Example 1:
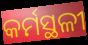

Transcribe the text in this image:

କର୍ମସ୍ଥଳୀ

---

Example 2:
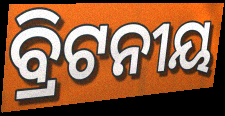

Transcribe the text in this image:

ବ୍ରିଟନୀୟ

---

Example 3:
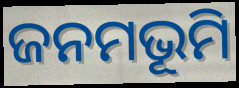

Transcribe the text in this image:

ଜନମଭୂମି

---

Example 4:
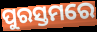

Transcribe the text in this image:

ପୁରସ୍ତମରେ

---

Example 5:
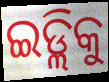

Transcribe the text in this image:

ଇଡ୍ଲିକୁ